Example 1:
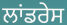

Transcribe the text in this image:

ਲਾਂਡਰੇਸ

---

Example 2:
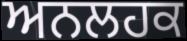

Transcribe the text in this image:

ਅਨਲਹਕ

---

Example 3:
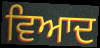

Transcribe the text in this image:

ਵਿਆਦ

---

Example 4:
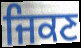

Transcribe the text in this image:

ਜਿਕਣ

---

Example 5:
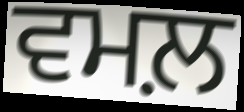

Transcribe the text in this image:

ਵਮਲ਼